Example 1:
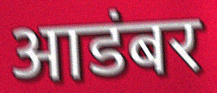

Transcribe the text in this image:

आडंबर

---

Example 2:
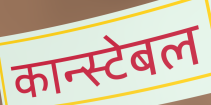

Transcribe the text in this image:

कान्स्टेबल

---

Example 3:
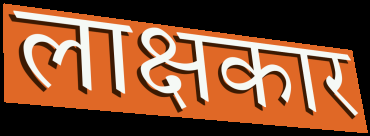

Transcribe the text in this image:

लाक्षकार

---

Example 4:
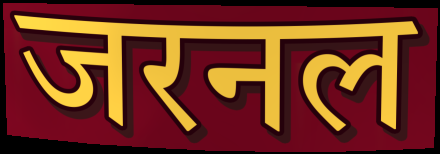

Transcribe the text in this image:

जरनल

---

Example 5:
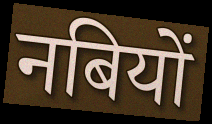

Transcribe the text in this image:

नबियों